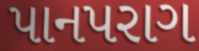
પાનપરાગ